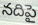
నదిపై